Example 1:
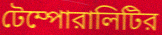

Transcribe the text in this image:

টেম্পোরালিটির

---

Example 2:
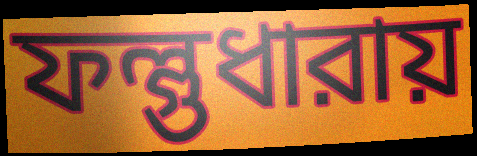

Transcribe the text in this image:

ফল্গুধারায়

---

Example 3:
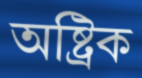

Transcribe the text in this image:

অষ্ট্রিক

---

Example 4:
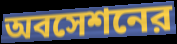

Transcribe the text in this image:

অবসেশনের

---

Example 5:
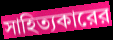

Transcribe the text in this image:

সাহিত্যকারের